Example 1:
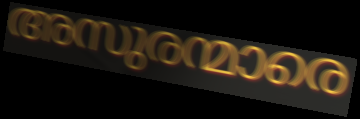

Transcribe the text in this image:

അസുരന്മാരെ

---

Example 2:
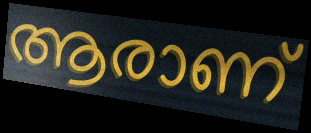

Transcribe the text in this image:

ആരാണ്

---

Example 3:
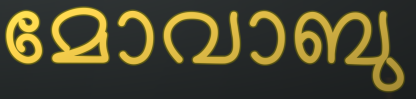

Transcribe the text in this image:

മോവാബു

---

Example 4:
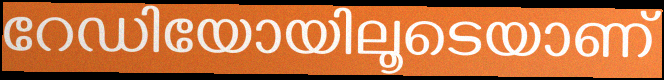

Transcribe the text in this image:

റേഡിയോയിലൂടെയാണ്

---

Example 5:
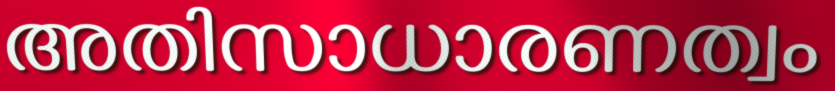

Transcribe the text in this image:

അതിസാധാരണത്വം